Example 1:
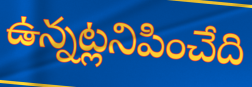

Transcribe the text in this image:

ఉన్నట్లనిపించేది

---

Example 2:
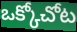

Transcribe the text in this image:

ఒక్కోచోట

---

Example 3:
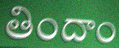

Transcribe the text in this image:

తిందాం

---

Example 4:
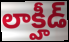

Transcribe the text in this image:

లాక్హీడ్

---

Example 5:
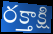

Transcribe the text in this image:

రక్తాక్షి